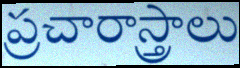
ప్రచారాస్త్రాలు